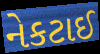
નેકટાઈ